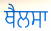
ਥੈਲਸਾ